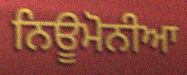
ਨਿਊਮੋਨੀਆ